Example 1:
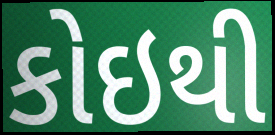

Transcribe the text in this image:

કોઇથી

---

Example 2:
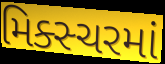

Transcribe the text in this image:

મિક્સ્ચરમાં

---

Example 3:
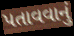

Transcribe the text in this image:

પતાવવાનું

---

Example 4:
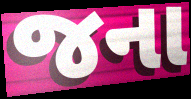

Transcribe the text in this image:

જના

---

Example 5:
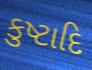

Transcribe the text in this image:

કુષ્ટાદિ